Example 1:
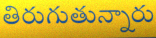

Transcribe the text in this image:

తిరుగుతున్నారు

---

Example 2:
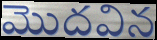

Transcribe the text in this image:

మొదవిన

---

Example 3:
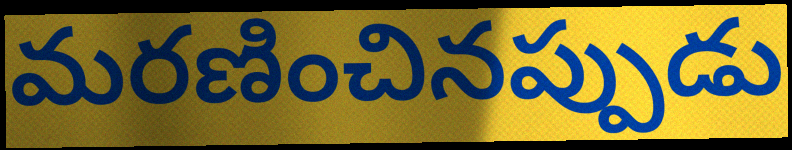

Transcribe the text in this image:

మరణించినప్పుడు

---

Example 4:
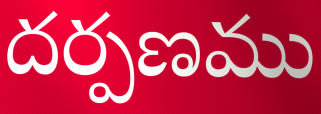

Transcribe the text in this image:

దర్పణము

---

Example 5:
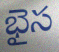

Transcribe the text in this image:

భైస